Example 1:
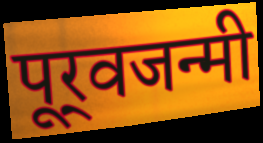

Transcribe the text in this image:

पूर्वजन्मी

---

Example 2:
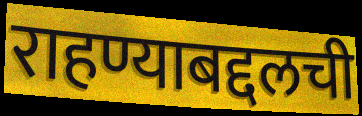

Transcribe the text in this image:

राहण्याबद्दलची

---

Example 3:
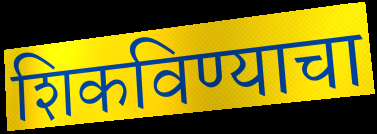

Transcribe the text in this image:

शिकविण्याचा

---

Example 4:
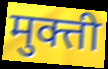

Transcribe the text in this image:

मुक्ती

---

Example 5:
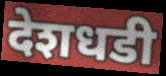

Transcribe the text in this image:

देशधडी